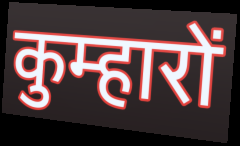
कुम्हारों